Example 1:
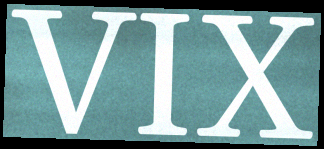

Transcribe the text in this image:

VIX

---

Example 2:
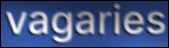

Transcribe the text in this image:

vagaries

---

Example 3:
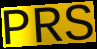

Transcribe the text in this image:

PRS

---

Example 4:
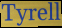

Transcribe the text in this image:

Tyrell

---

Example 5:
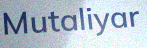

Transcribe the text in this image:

Mutaliyar